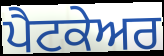
ਪੈਟਕੇਅਰ